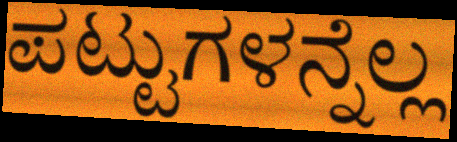
ಪಟ್ಟುಗಳನ್ನೆಲ್ಲ